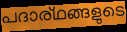
പദാര്ഥങ്ങളുടെ